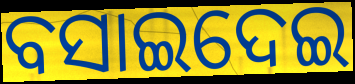
ବସାଇଦେଇ